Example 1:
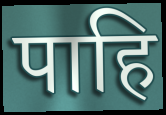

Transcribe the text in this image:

पाहि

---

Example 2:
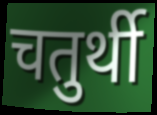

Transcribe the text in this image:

चतुर्थी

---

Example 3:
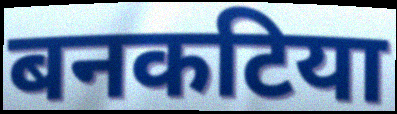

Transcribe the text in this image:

बनकटिया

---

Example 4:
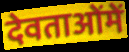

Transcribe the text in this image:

देवताओंमें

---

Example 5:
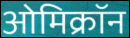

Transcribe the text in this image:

ओमिक्रॉन